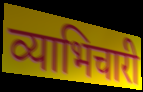
व्याभिचारी